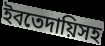
ইবতেদায়িসহ